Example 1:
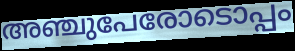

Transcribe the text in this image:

അഞ്ചുപേരോടൊപ്പം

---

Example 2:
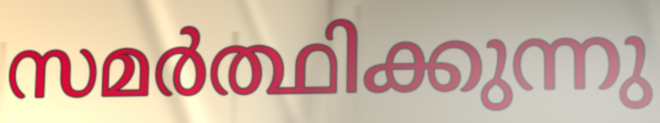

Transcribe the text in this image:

സമർത്ഥിക്കുന്നു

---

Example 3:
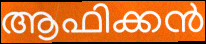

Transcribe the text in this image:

ആഫിക്കൻ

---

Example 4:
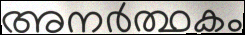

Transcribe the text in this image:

അനർത്ഥകം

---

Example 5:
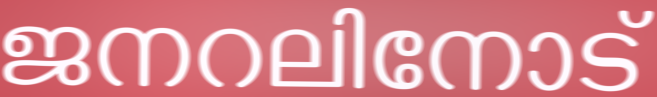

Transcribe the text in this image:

ജനറലിനോട്